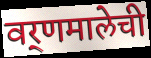
वर्णमालेची